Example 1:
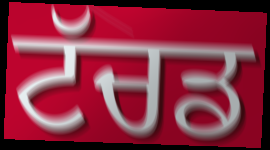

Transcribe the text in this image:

ਟੱਚਡ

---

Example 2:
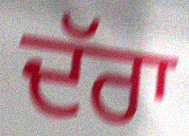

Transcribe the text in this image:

ਦੱਰਾ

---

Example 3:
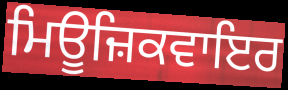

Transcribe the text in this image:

ਮਿਊਜ਼ਿਕਵਾਇਰ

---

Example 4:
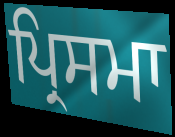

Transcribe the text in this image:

ਪ੍ਰਿਸਮਾ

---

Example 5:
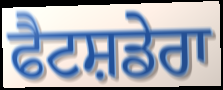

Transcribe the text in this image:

ਫੈਟਸ਼ਡੇਰਾ